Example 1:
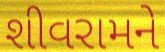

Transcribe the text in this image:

શીવરામને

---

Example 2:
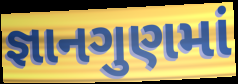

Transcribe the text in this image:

જ્ઞાનગુણમાં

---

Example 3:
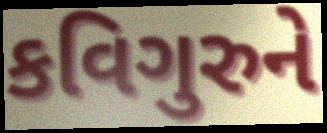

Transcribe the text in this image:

કવિગુરુને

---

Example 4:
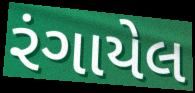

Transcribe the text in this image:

રંગાયેલ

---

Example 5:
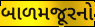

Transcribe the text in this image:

બાળમજૂરનો